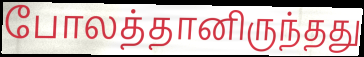
போலத்தானிருந்தது